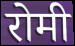
रोमी